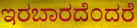
ಇರಬಾರದೆಂದರೆ